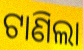
ଟାଣିଲା